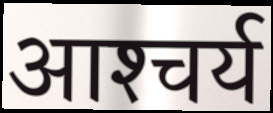
आश्‍चर्य